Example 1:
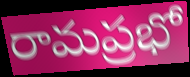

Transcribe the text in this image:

రామప్రభో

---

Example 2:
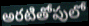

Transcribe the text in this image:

అరటితోపులో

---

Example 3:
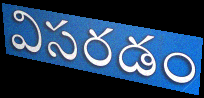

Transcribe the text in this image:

విసరడం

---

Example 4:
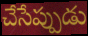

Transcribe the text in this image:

చేసేప్పుడు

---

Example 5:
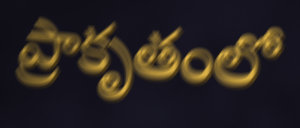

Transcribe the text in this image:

ప్రాకృతంలో